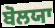
ਬੋਲਯਾ